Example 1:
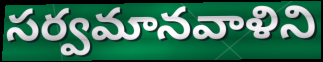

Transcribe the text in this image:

సర్వమానవాళిని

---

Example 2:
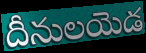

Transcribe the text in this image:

దీనులయెడ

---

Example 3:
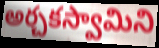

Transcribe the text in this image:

అర్చకస్వామిని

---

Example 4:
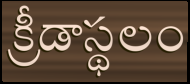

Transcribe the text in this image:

క్రీడాస్థలం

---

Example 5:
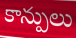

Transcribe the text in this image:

కాన్పులు